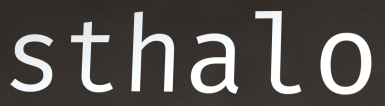
sthalo